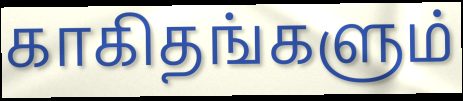
காகிதங்களும்